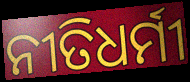
ନୀତିଧର୍ମୀ